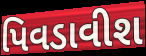
પિવડાવીશ